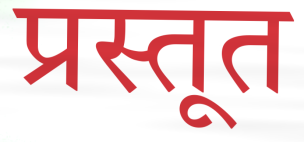
प्रस्तूत